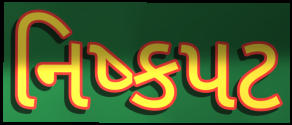
નિષ્કપટ